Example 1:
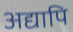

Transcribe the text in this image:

अद्यापि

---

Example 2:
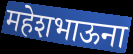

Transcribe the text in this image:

महेशभाऊना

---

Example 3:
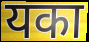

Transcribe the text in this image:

यका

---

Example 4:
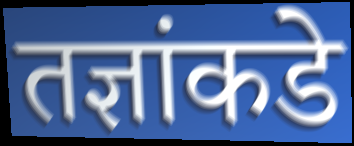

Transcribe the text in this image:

तज्ञांकडे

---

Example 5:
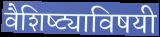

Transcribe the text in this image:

वैशिष्ट्याविषयी